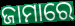
ଜାମାରେ